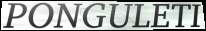
PONGULETI